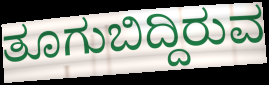
ತೂಗುಬಿದ್ದಿರುವ